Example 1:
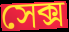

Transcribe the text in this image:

সেক্স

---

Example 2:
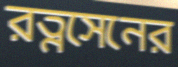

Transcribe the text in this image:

রত্নসেনের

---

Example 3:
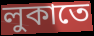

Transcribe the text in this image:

লুকাতে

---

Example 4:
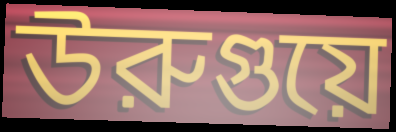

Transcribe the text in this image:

উরুগুয়ে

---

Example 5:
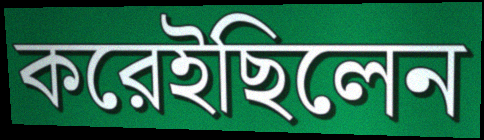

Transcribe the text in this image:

করেইছিলেন